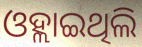
ଓହ୍ଲାଇଥିଲି